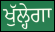
ਖੁੱਲ੍ਹੇਗਾ